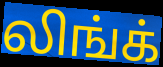
லிங்க்